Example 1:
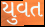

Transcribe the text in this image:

યુવત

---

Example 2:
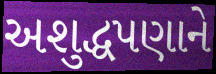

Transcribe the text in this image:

અશુદ્ધપણાને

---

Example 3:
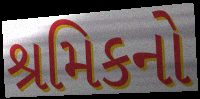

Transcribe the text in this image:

શ્રમિકનો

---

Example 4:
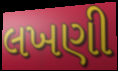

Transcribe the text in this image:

લખણી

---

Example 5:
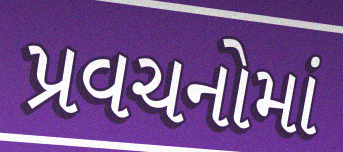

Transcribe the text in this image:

પ્રવચનોમાં